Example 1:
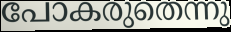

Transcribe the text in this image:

പോകരുതെന്നു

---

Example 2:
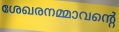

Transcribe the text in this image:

ശേഖരനമ്മാവന്റെ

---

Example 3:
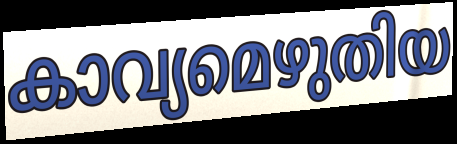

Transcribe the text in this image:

കാവ്യമെഴുതിയ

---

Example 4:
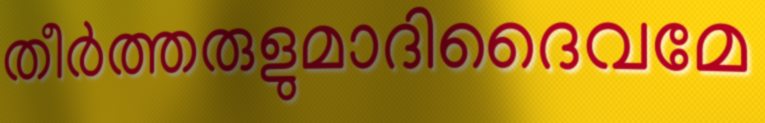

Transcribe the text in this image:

തീർത്തരുളുമാദിദൈവമേ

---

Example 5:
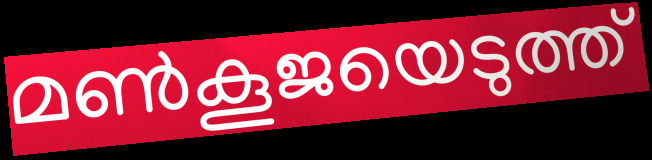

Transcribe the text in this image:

മൺകൂജയെടുത്ത്